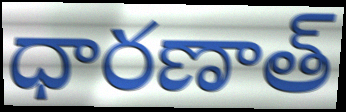
ధారణాత్